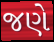
જણે